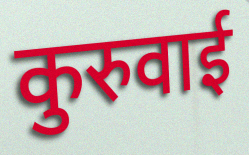
कुरुवाई